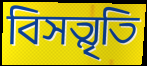
বিসত্মৃতি